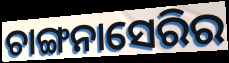
ଚାଙ୍ଗନାସେରିର